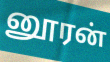
னூரன்